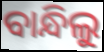
ବାନ୍ଧିଲୁ